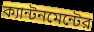
ক্যান্টনমেন্টের